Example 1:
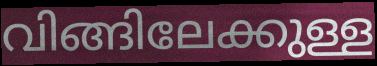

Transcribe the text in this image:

വിങ്ങിലേക്കുള്ള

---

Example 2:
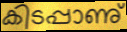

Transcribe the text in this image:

കിടപ്പാണു്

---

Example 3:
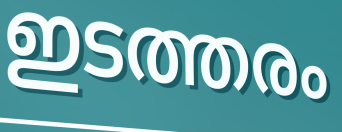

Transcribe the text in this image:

ഇടത്തരം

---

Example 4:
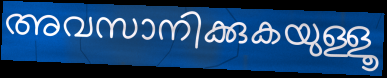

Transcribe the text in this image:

അവസാനിക്കുകയുള്ളൂ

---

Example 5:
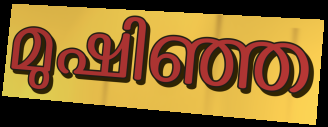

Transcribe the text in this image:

മുഷിഞ്ഞ